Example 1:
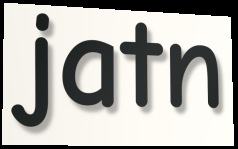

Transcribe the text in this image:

jatn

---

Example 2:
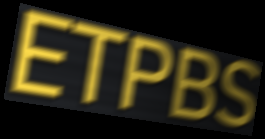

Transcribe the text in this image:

ETPBS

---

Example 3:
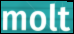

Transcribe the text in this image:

molt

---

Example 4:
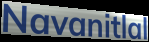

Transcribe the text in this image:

Navanitlal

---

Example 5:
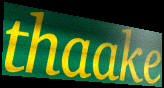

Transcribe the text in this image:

thaake